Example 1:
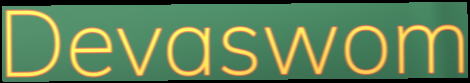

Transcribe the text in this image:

Devaswom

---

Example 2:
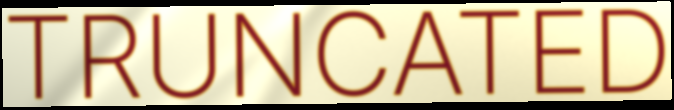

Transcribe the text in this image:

TRUNCATED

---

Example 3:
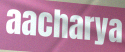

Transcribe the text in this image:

aacharya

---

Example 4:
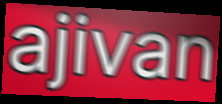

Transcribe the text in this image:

ajivan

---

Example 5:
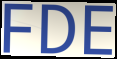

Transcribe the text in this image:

FDE